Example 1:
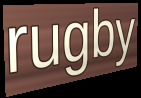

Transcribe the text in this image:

rugby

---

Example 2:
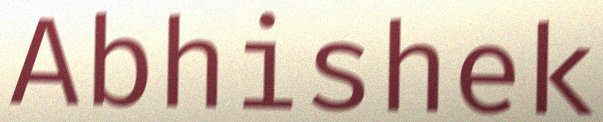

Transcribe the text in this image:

Abhishek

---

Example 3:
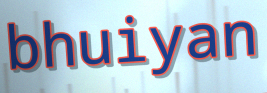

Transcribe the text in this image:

bhuiyan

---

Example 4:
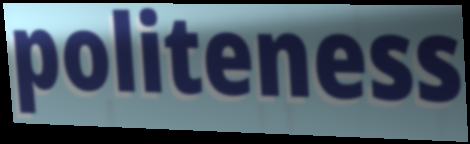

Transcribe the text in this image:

politeness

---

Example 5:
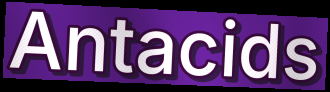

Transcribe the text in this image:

Antacids